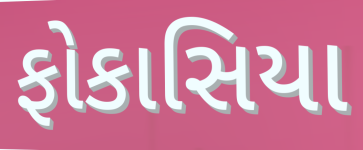
ફોકાસિયા